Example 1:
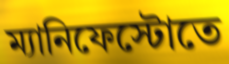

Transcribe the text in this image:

ম্যানিফেস্টোতে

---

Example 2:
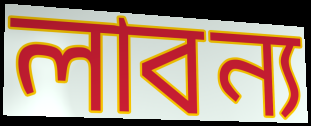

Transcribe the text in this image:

লাবন্য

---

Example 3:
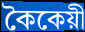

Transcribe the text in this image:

কৈকেয়ী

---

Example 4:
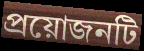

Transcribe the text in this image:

প্রয়োজনটি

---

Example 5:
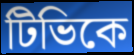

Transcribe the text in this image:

টিভিকে